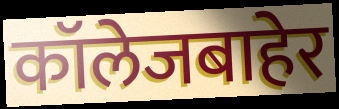
कॉलेजबाहेर